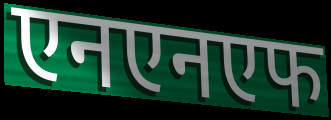
एनएनएफ